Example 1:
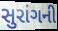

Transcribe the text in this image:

સુરાંગની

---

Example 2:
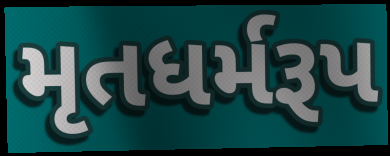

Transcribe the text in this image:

મૃતધર્મરૂપ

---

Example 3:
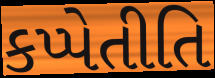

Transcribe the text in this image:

કપ્પેતીતિ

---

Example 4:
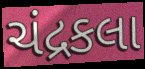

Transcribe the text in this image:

ચંદ્રકલા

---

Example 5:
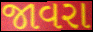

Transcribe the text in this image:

જાવરા